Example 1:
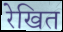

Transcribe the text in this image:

रेखित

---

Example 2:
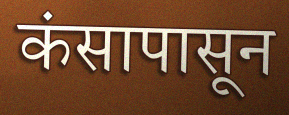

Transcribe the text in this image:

कंसापासून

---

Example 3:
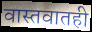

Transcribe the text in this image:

वास्तवातही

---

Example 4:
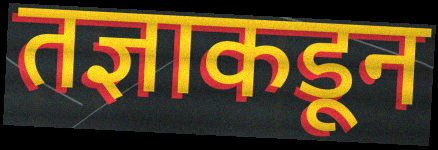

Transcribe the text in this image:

तज्ञाकडून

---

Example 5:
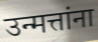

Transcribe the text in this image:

उन्मत्तांना